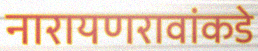
नारायणरावांकडे